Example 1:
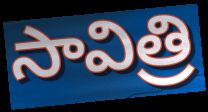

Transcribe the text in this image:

సావిత్రి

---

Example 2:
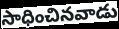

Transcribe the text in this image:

సాధించినవాడు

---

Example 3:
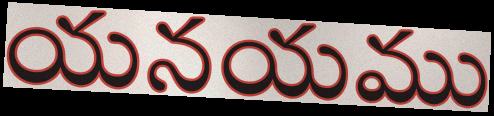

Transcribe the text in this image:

యనయము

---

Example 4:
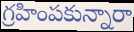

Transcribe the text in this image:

గ్రహింపకున్నారా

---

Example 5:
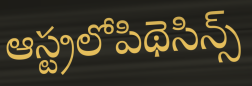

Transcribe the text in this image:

ఆస్ట్రలోపిథెసిన్స్